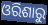
ଓରିଶାରୁ